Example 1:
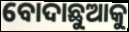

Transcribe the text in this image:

ବୋଦାଛୁଆକୁ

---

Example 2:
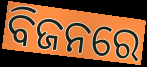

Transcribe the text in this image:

ବିଜନରେ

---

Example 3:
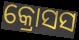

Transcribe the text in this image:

କ୍ରୋସସ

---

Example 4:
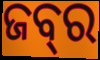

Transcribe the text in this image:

ଜବ୍‍ର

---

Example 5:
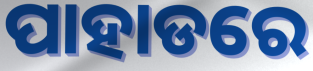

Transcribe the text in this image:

ପାହାଡରେ